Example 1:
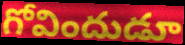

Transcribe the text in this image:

గోవిందుడూ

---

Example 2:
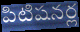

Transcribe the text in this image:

పిటిషనర్ల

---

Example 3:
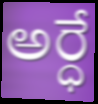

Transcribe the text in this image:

అర్ధే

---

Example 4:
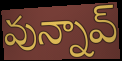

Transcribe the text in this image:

వున్నావ్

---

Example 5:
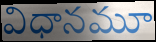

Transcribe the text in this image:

విధానమూ